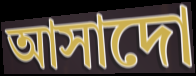
আসাদো